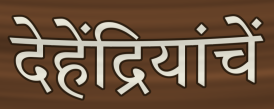
देहेंद्रियांचें